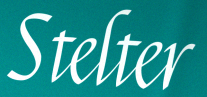
Stelter